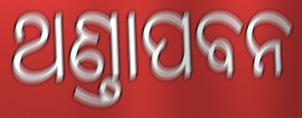
ଥଣ୍ତାପବନ